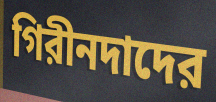
গিরীনদাদের